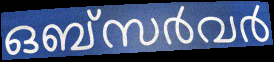
ഒബ്സർവർ